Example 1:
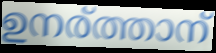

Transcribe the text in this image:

ഉനര്ത്താന്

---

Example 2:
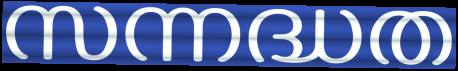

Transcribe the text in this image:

സന്നദ്ധത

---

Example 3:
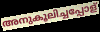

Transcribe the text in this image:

അനുകൂലിച്ചപ്പോള്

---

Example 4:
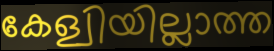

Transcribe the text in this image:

കേള്വിയില്ലാത്ത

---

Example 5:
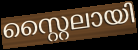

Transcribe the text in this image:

സ്റ്റൈലായി